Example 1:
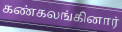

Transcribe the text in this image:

கண்கலங்கினார்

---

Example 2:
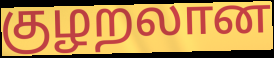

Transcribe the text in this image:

குழறலான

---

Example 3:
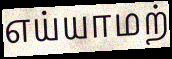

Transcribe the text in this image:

எய்யாமற்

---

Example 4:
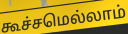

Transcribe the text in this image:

கூச்சமெல்லாம்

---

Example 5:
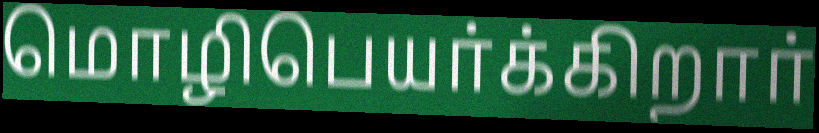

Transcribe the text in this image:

மொழிபெயர்க்கிறார்